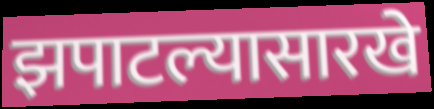
झपाटल्यासारखे